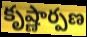
కృష్ణార్పణ